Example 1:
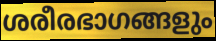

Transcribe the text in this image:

ശരീരഭാഗങ്ങളും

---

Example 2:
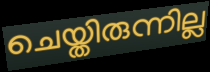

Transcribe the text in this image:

ചെയ്തിരുന്നില്ല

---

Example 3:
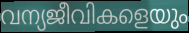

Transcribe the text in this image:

വന്യജീവികളെയും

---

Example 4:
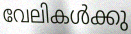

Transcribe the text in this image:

വേലികൾക്കു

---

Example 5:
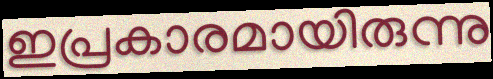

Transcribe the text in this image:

ഇപ്രകാരമായിരുന്നു